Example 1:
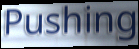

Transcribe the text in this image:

Pushing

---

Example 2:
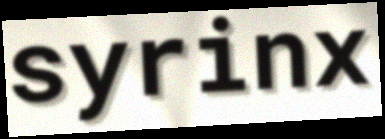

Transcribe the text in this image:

syrinx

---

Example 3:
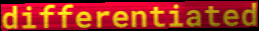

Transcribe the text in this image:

differentiated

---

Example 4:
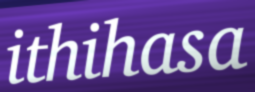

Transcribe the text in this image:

ithihasa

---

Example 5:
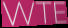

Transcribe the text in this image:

WTE